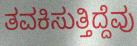
ತವಕಿಸುತ್ತಿದ್ದೆವು